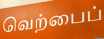
வெற்பைப்